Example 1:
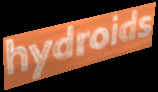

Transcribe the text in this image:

hydroids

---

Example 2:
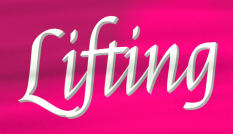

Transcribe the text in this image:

Lifting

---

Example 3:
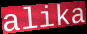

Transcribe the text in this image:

alika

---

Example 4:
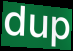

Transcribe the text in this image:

dup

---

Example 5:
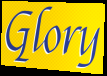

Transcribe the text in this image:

Glory